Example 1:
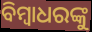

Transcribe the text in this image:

ବିମ୍ୱାଧରଙ୍କୁ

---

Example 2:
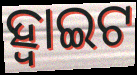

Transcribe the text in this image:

ହ୍ବାଇଟ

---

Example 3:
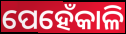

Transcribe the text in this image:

ପେହେଁକାଳି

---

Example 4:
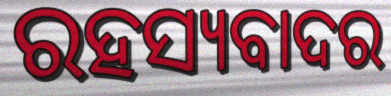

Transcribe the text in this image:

ରହସ୍ୟବାଦର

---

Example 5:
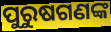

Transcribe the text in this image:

ପୁରୁଷଗଣଙ୍କ